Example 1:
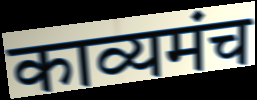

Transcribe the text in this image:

काव्यमंच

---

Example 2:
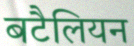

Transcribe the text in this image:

बटैलियन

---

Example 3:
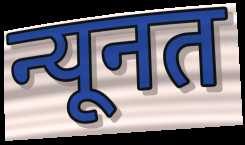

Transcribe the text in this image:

न्यूनत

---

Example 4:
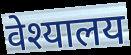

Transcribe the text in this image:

वेश्यालय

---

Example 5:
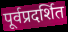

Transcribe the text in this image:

पूर्वप्रदर्शित